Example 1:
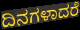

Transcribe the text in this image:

ದಿನಗಳಾದರೆ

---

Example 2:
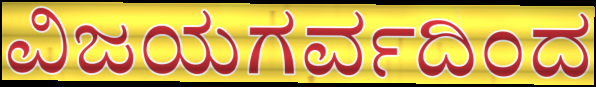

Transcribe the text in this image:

ವಿಜಯಗರ್ವದಿಂದ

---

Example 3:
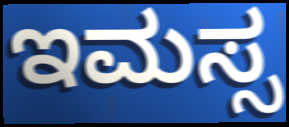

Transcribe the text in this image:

ಇಮಸ್ಸ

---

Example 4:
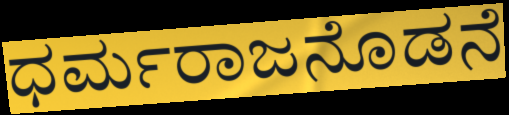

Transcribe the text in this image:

ಧರ್ಮರಾಜನೊಡನೆ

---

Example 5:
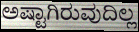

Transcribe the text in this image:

ಅಷ್ಟಾಗಿರುವುದಿಲ್ಲ